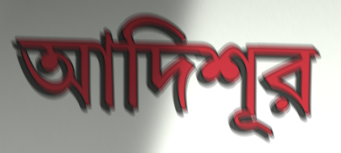
আদিশূর